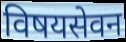
विषयसेवन